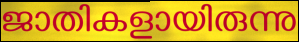
ജാതികളായിരുന്നു